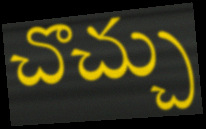
చొచ్చు